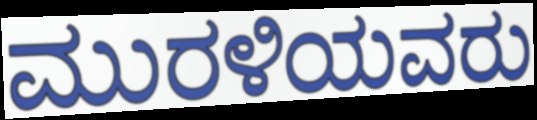
ಮುರಳಿಯವರು